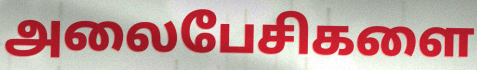
அலைபேசிகளை